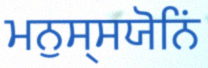
ਮਨੁਸ੍ਸਯੋਨਿਂ